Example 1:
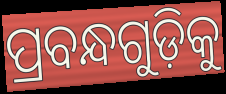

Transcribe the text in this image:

ପ୍ରବନ୍ଧଗୁଡ଼ିକୁ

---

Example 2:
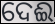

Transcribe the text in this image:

ଦେଈ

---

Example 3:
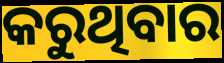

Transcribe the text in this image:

କରୁଥିବାର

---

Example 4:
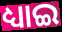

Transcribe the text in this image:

ଧ୍ୟାଇ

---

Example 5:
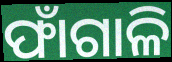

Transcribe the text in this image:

ଫାଁଗାଳି